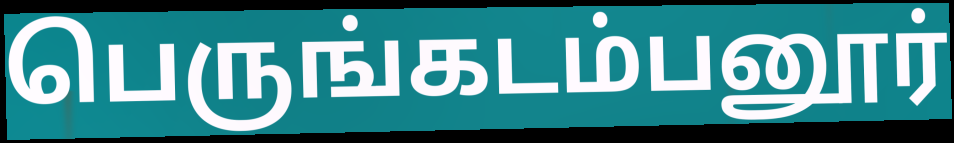
பெருங்கடம்பனூர்